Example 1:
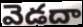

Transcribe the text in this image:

వెడదా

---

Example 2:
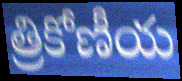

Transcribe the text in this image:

త్రికోణీయ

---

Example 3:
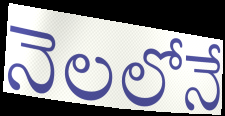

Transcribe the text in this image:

నెలలోనే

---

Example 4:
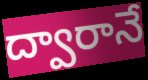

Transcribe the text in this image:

ద్వారానే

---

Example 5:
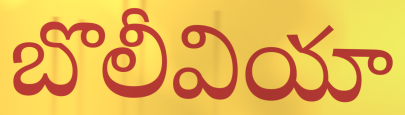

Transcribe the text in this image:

బొలీవియా